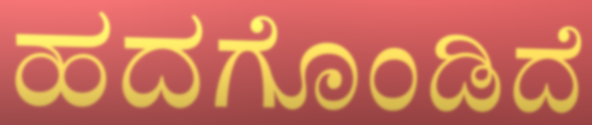
ಹದಗೊಂಡಿದೆ